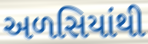
અળસિયાંથી